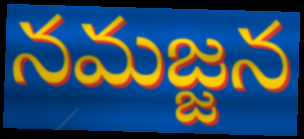
నమజ్జన